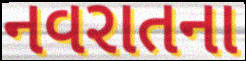
નવરાતના